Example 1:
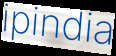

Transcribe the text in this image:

ipindia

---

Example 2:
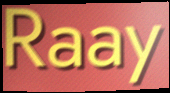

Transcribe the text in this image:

Raay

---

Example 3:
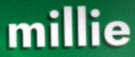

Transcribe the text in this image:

millie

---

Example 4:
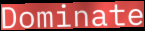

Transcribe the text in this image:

Dominate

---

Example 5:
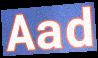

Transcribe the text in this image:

Aad